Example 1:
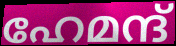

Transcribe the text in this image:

ഹേമന്ദ്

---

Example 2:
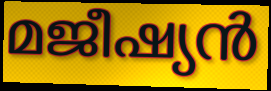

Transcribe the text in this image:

മജീഷ്യൻ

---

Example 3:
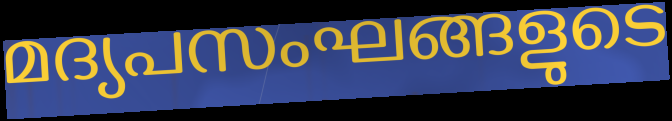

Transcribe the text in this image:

മദ്യപസംഘങ്ങളുടെ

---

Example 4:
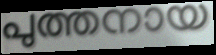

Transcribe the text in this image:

പുത്തനായ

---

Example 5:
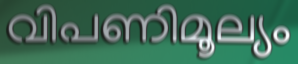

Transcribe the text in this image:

വിപണിമൂല്യം